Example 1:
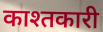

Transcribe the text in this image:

काश्तकारी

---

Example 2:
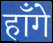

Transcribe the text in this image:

हाँगे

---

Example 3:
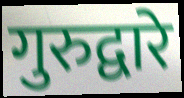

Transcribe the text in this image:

गुरुद्वारे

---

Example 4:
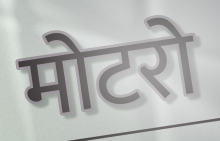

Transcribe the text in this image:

मोटरो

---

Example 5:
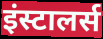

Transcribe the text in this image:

इंस्टालर्स